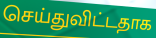
செய்துவிட்டதாக